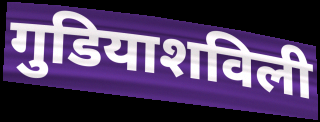
गुडियाशविली